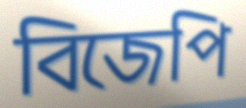
বিজেপি